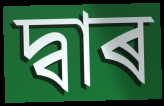
দ্বাৰ